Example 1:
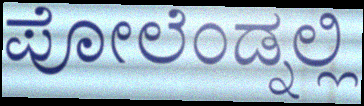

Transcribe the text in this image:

ಪೋಲೆಂಡ್ನಲ್ಲಿ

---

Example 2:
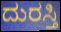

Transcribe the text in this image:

ದುರಸ್ತಿ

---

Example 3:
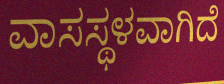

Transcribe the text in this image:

ವಾಸಸ್ಥಳವಾಗಿದೆ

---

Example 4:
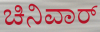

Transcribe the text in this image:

ಚಿನಿವಾರ್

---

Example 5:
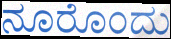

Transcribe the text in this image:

ನೂರೊಂದು